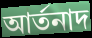
আর্তনাদ